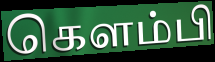
கெளம்பி